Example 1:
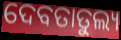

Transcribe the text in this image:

ଦେବତାତୁଲ୍ୟ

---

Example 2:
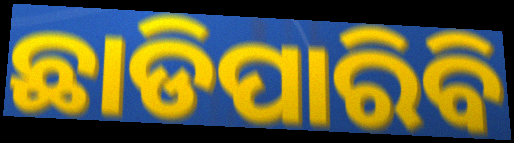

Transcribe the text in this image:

ଛାଡିପାରିବି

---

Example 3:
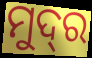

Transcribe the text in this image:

ମୁଦ୍‌ର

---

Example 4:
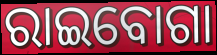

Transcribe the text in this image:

ରାଇବୋଗା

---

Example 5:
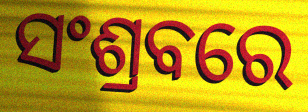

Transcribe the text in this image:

ସଂଶ୍ରବରେ